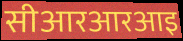
सीआरआरआइ